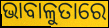
ଭାବାଳୁତାରେ